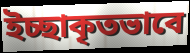
ইচ্ছাকৃতভাবে